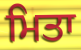
ਮਿਤਾ